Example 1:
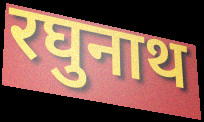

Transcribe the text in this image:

रघुनाथ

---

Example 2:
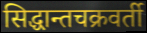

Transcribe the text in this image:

सिद्धान्तचक्रवर्ती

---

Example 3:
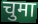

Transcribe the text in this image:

चुमा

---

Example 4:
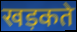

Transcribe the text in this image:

खड़कते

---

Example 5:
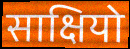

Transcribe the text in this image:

साक्षियो